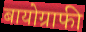
बायोग्राफी